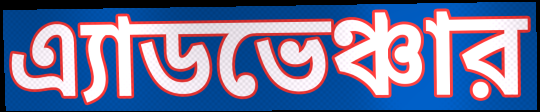
এ্যাডভেঞ্চার